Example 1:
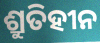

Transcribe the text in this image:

ଶ୍ରୁତିହୀନ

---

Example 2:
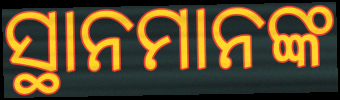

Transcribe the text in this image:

ସ୍ଥାନମାନଙ୍କ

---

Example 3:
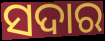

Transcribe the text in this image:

ସଦାର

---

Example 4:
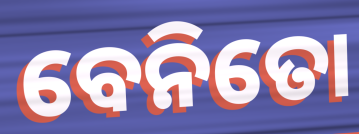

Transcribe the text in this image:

ବେନିତୋ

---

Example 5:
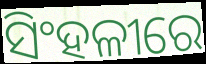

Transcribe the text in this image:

ସିଂହଳୀରେ